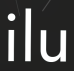
ilu